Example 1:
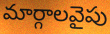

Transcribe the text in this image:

మార్గాలవైపు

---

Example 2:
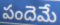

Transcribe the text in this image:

పందెమే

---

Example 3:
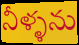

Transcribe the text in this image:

నీళ్ళను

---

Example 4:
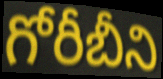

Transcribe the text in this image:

గోరీబీని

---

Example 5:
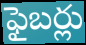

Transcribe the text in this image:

ఫైబర్లు